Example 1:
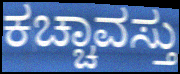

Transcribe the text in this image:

ಕಚ್ಚಾವಸ್ತು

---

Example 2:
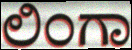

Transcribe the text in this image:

ಲಿಂಗಾ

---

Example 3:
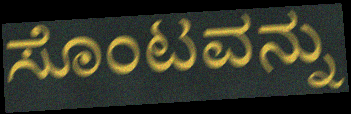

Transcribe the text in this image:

ಸೊಂಟವನ್ನು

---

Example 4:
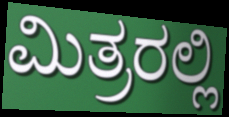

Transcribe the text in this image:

ಮಿತ್ರರಲ್ಲಿ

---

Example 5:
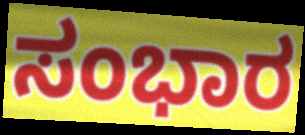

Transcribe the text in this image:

ಸಂಭಾರ